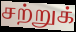
சற்றுக்